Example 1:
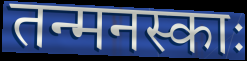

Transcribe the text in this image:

तन्मनस्काः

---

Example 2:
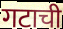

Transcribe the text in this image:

गटाची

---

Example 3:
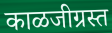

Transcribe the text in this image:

काळजीग्रस्त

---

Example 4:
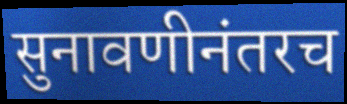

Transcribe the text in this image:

सुनावणीनंतरच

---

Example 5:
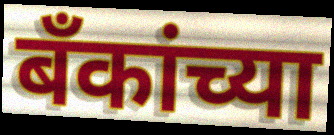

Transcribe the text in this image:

बॅंकांच्या